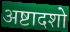
अष्टादशो